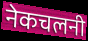
नेकचलनी